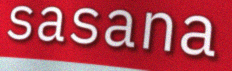
sasana